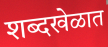
शब्दखेळात